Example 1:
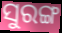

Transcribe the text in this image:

ସୁରଙ୍ଗ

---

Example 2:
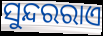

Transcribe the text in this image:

ସୁନ୍ଦରରାଏ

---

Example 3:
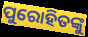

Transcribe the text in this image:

ପୁରୋହିତଙ୍କୁ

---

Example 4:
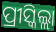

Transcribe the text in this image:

ପ୍ରୀସ୍କିଲ୍ଲା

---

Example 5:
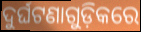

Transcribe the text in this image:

ଦୁର୍ଘଟଣାଗୁଡ଼ିକରେ